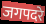
जगपदरे